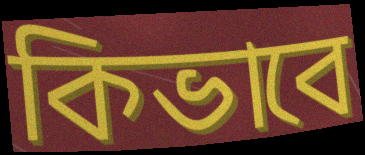
কিভাবে